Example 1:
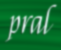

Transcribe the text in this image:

pral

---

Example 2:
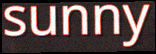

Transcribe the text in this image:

sunny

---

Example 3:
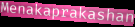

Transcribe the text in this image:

Menakaprakashan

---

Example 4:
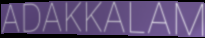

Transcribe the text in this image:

ADAKKALAM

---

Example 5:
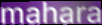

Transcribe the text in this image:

mahara